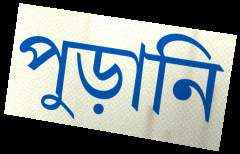
পুড়ানি